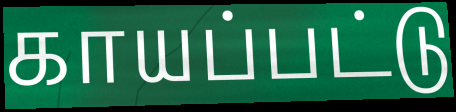
காயப்பட்டு